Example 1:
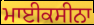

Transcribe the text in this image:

ਮਾਈਕਸੀਨਾ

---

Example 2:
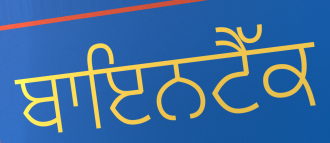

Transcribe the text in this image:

ਬਾਇਨਟੈੱਕ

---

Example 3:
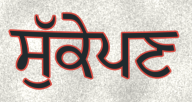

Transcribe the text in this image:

ਸੁੱਕੇਪਣ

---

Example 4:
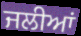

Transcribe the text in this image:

ਜਲੀਆਂ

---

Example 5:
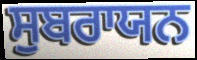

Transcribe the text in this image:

ਸੁਬਰਾਯਨ